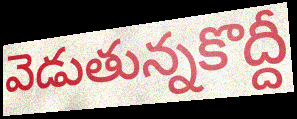
వెడుతున్నకొద్దీ